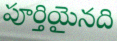
పూర్తియైనది